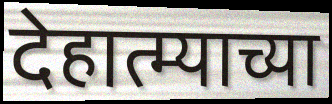
देहात्म्याच्या